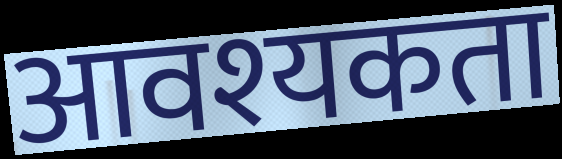
आवश्‍यकता